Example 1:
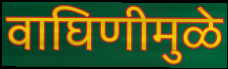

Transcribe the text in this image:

वाघिणीमुळे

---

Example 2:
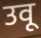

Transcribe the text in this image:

उवू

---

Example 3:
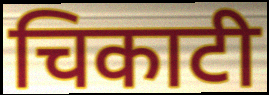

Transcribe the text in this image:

चिकाटी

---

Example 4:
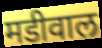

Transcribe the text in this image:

मडीवाल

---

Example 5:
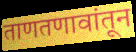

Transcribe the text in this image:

ताणतणावांतून